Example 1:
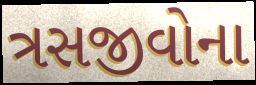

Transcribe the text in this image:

ત્રસજીવોના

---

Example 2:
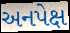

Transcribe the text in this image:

અનપેક્ષ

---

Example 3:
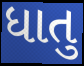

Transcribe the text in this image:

ધાતુ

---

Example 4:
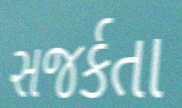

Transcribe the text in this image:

સજર્કતા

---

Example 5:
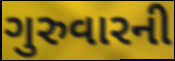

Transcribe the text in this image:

ગુરુવારની